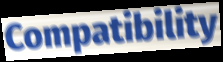
Compatibility